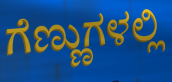
ಗೆಣ್ಣುಗಳಲ್ಲಿ